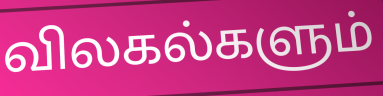
விலகல்களும்